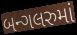
બન્ગલરુમાં